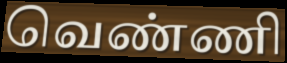
வெண்ணி